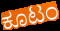
ಕೂಟಂ